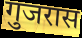
गुजरास